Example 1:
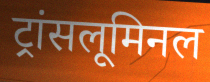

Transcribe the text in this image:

ट्रांसलूमिनल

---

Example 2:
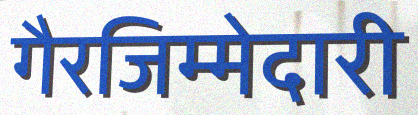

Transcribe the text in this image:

गैरजिम्मेदारी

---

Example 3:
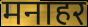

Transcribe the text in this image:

मनाहर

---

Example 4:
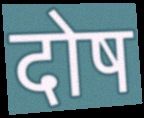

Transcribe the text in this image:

दोष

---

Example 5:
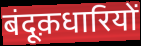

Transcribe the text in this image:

बंदूक़धारियों